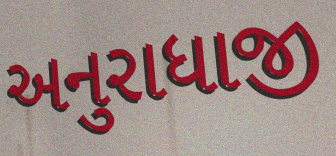
અનુરાધાજી